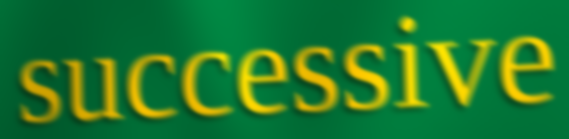
successive